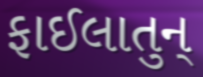
ફાઈલાતુન્